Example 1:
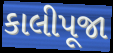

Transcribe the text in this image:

કાલીપૂજા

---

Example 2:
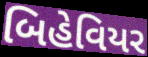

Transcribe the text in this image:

બિહેવિયર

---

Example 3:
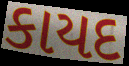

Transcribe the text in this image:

કાયદ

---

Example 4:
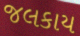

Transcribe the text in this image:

જલકાય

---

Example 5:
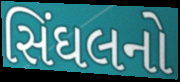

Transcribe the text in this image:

સિંઘલનો